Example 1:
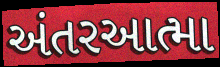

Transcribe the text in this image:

અંતરઆત્મા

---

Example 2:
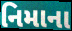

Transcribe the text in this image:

નિમાના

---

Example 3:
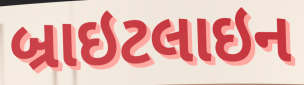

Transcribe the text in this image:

બ્રાઇટલાઇન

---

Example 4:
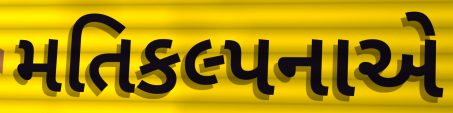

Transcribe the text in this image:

મતિકલ્પનાએ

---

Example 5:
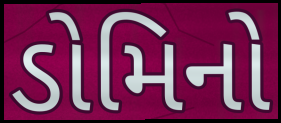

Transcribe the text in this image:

ડોમિનો